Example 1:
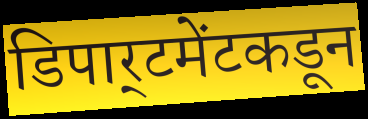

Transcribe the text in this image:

डिपार्टमेंटकडून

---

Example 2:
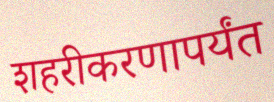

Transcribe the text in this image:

शहरीकरणापर्यंत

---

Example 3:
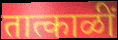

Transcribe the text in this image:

तात्काळीं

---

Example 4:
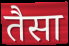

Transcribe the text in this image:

तैसा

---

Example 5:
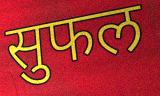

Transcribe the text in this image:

सुफल